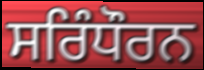
ਸਰਿੰਧੌਰਨ